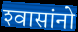
श्वासांनो